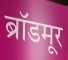
ब्रॉडमूर